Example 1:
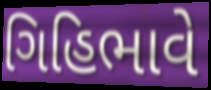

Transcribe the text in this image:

ગિહિભાવે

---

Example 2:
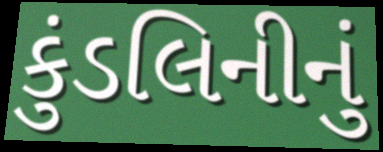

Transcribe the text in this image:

કુંડલિનીનું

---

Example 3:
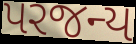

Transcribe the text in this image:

પરજન્ય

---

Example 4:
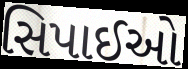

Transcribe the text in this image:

સિપાઈઓ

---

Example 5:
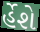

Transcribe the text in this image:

ર્હેશે